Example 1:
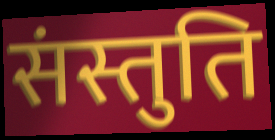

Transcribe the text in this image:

संस्तुति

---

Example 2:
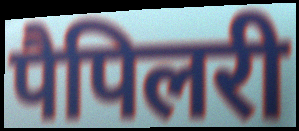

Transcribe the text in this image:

पैपिलरी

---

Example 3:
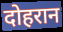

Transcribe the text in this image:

दोहरान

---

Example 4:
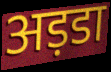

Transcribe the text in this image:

अड़डा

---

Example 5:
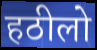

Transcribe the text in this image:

हठीलो